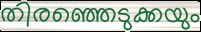
തിരഞ്ഞെടുക്കയും